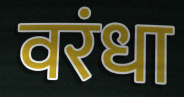
वरंधा